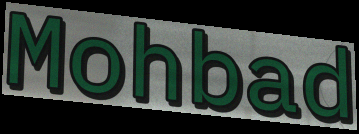
Mohbad